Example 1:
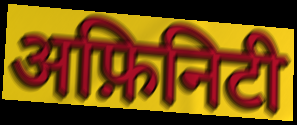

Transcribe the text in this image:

अफ़िनिटी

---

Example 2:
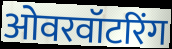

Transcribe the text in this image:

ओवरवॉटरिंग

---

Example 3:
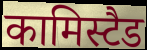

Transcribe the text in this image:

कामिस्टैड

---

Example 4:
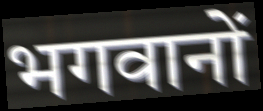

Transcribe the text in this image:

भगवानों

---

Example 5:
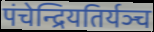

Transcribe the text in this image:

पंचेन्द्रियतिर्यञ्च